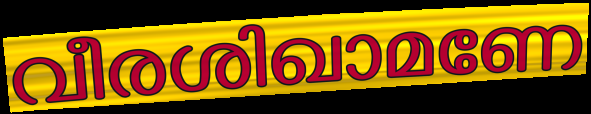
വീരശിഖാമണേ